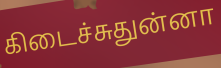
கிடைச்சுதுன்னா